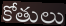
కోతులు